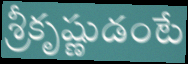
శ్రీకృష్ణుడంటే